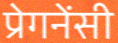
प्रेगनेंसी